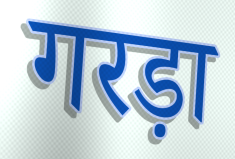
गरड़ा